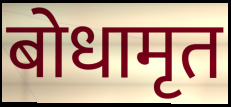
बोधामृत